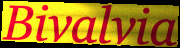
Bivalvia